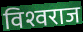
विश्वराज